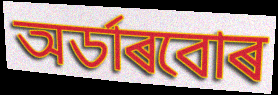
অৰ্ডাৰবোৰ